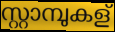
സ്റ്റാമ്പുകള്